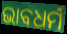
ଭାବଧର୍ମ